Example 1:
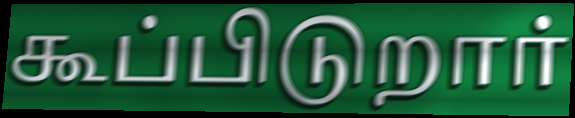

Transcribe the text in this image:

கூப்பிடுறார்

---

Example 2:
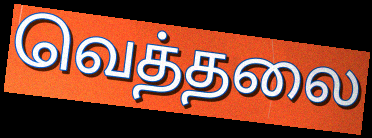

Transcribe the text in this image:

வெத்தலை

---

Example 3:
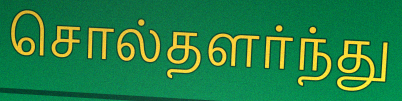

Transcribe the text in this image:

சொல்தளர்ந்து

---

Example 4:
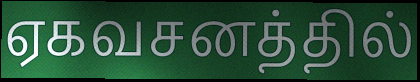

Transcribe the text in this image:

ஏகவசனத்தில்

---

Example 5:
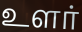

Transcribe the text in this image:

உளர்